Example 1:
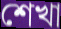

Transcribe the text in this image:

শেখা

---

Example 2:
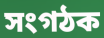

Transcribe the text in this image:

সংগঠক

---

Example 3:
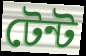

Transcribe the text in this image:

টেন্ট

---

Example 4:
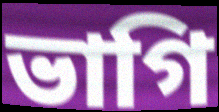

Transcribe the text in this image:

ভাগি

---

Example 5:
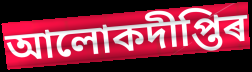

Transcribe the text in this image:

আলোকদীপ্তিৰ